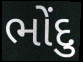
ભોંદુ